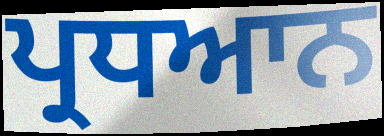
ਪ੍ਰਧਆਨ